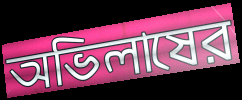
অভিলাষের